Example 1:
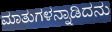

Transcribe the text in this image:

ಮಾತುಗಳನ್ನಾಡಿದನು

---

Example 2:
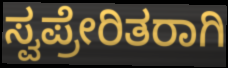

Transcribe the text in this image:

ಸ್ವಪ್ರೇರಿತರಾಗಿ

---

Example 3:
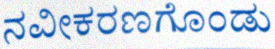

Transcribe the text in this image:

ನವೀಕರಣಗೊಂಡು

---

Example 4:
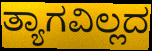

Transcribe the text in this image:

ತ್ಯಾಗವಿಲ್ಲದ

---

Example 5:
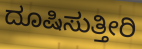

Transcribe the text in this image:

ದೂಷಿಸುತ್ತೀರಿ